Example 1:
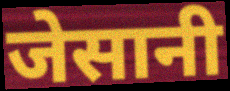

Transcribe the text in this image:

जेसानी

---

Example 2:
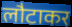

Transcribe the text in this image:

लौटाकर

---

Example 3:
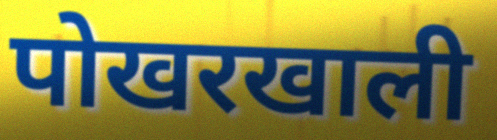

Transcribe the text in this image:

पोखरखाली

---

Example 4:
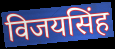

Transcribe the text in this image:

विजयसिंह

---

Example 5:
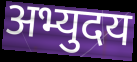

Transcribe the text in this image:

अभ्युदय